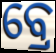
ବ୍ରେ